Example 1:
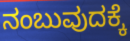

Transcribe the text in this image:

ನಂಬುವುದಕ್ಕೆ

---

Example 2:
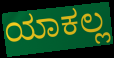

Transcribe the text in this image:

ಯಾಕಲ್ಲ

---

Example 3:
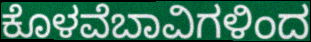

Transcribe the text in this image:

ಕೊಳವೆಬಾವಿಗಳಿಂದ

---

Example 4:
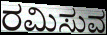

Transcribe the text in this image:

ರಮಿಸುವ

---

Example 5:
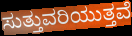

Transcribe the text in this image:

ಸುತ್ತುವರಿಯುತ್ತವೆ